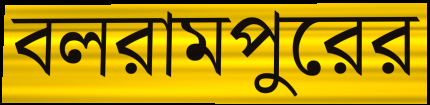
বলরামপুরের